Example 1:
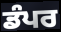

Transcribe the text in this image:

ਡੰਪਰ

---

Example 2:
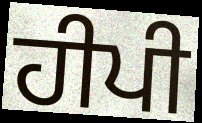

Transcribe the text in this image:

ਹੀਪੀ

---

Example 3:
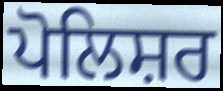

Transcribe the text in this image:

ਪੋਲਿਸ਼ਰ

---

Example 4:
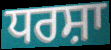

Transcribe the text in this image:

ਧਰਸ਼ਾ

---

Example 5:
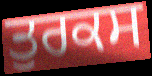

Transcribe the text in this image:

ਤੁਰਕਸ